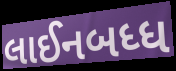
લાઈનબધ્ધ